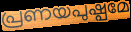
പ്രണയപുഷ്പമേ